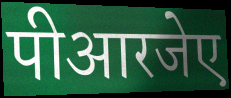
पीआरजेए